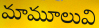
మామూలువి